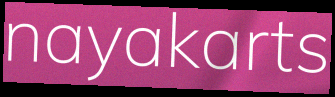
nayakarts